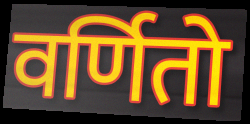
वर्णितो